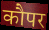
कौपर